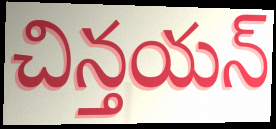
చిన్తయన్